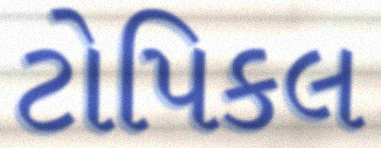
ટોપિકલ